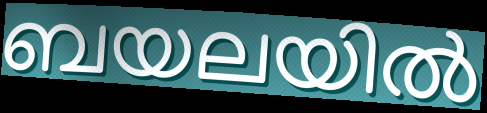
ബയലയിൽ